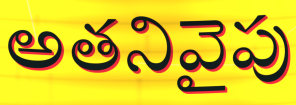
అతనివైపు